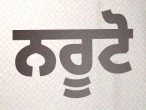
ਨਰੂਟੋ